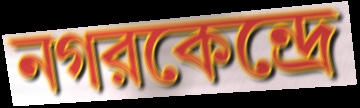
নগরকেন্দ্রে